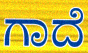
ಗಾದೆ